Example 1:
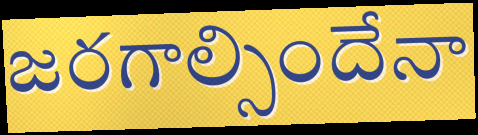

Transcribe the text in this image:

జరగాల్సిందేనా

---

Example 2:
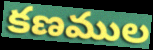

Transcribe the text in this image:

కణముల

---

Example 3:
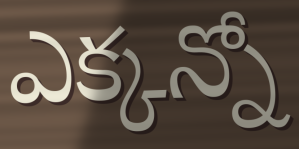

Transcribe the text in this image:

ఎక్కన్నో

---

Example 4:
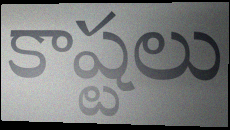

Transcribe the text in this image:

కాష్టలు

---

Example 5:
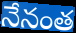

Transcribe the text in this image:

నేనంత